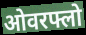
ओवरफ्लो